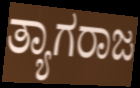
ತ್ಯಾಗರಾಜ